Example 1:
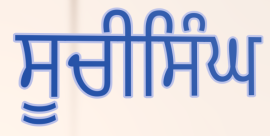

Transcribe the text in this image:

ਸੂਚੀਸਿੰਘ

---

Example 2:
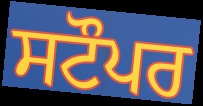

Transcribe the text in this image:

ਸਟੌਪਰ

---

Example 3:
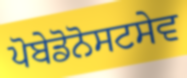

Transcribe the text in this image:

ਪੋਬੇਡੋਨੋਸਟਸੇਵ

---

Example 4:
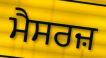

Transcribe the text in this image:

ਮੈਸਰਜ਼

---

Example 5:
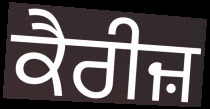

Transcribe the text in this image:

ਕੈਰੀਜ਼